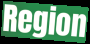
Region